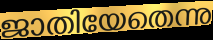
ജാതിയേതെന്നു